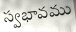
స్వభావము